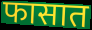
फासात